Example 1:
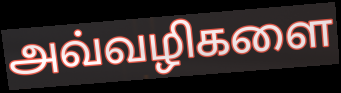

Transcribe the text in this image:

அவ்வழிகளை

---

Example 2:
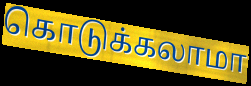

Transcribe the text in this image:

கொடுக்கலாமா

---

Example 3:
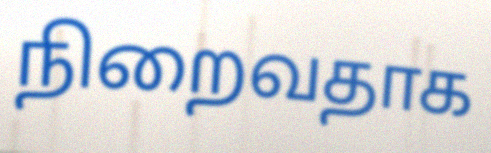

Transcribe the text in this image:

நிறைவதாக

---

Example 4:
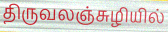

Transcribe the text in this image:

திருவலஞ்சுழியில்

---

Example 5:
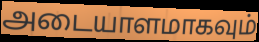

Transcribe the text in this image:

அடையாளமாகவும்